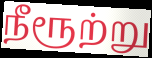
நீரூற்று